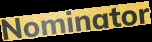
Nominator